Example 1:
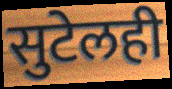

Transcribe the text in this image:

सुटेलही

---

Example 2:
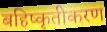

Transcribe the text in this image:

बहिष्कृतीकरण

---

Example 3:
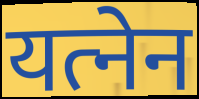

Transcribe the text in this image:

यत्‍नेन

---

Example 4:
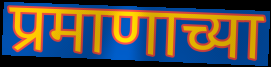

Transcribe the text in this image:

प्रमाणाच्या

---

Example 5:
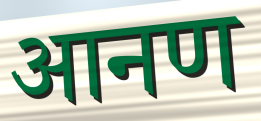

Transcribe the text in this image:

आनण